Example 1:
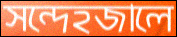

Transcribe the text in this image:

সন্দেহজালে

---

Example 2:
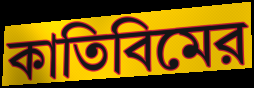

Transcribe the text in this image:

কাতিবিমের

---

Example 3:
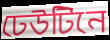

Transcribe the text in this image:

ঢেউটিনে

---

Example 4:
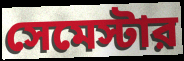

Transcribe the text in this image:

সেমেস্টার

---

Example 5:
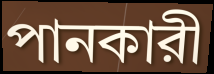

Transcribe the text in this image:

পানকারী